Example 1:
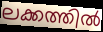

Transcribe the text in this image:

ലക്കത്തിൽ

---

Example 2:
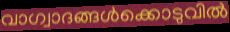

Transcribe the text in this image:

വാഗ്വാദങ്ങൾക്കൊടുവിൽ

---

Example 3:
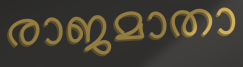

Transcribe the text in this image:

രാജമാതാ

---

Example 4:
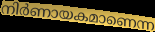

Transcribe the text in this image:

നിർണായകമാണെന്ന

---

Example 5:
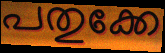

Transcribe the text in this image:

പതുക്കേ